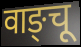
वाङ्चू